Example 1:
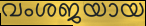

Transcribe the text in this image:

വംശജയായ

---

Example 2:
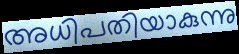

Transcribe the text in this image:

അധിപതിയാകുന്നു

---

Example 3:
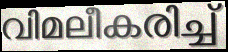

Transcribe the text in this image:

വിമലീകരിച്ച്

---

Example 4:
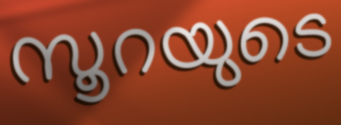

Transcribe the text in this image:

സൂറയുടെ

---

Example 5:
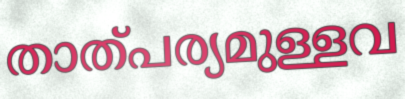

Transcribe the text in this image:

താത്പര്യമുള്ളവ